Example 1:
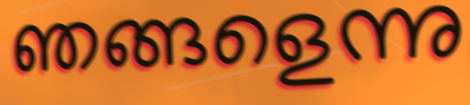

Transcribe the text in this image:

ഞങ്ങളെന്നു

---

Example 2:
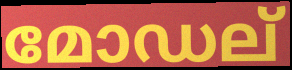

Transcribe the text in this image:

മോഡല്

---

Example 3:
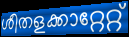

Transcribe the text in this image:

ശീതളക്കാറ്റേറ്റ്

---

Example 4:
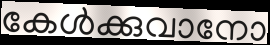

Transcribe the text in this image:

കേൾക്കുവാനോ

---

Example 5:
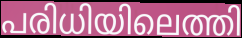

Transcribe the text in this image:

പരിധിയിലെത്തി